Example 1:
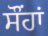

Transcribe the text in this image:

ਸੌਂਹਾਂ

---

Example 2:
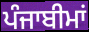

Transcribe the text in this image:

ਪੰਜਾਬੀਮਾਂ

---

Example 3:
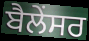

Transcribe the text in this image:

ਬੈਲੇਂਸਰ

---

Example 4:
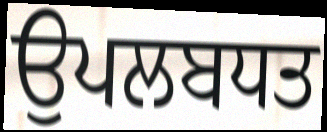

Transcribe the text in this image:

ਉਪਲਬਧਤ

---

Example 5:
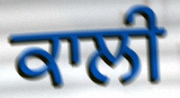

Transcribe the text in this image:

ਕਾਲੀ